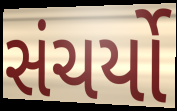
સંચર્યો